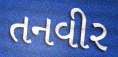
તનવીર